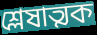
শ্লেষাত্মক